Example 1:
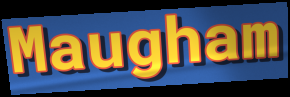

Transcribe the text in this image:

Maugham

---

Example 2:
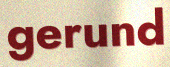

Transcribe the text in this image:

gerund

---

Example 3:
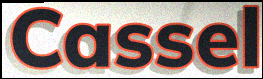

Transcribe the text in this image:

Cassel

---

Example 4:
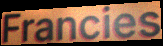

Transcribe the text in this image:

Francies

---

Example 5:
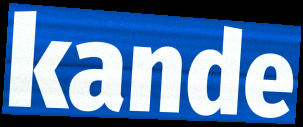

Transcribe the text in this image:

kande